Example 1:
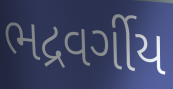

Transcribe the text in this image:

ભદ્રવર્ગીય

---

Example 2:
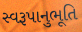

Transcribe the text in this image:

સ્વરૂપાનુભૂતિ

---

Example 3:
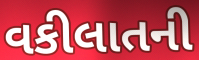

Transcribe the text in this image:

વકીલાતની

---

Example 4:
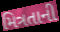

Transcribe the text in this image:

મિત્રતાની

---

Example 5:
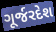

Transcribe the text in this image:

ગૂર્જરદેશ